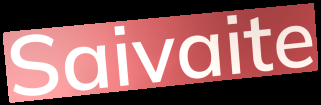
Saivaite